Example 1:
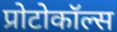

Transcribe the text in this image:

प्रोटोकॉल्स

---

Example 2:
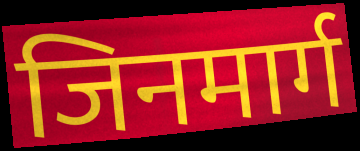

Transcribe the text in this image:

जिनमार्ग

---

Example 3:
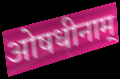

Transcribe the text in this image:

ओषधीनाम्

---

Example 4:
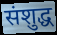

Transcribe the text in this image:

संशुद्ध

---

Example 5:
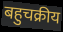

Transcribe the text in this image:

बहुचक्रीय